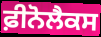
ਫ਼ੀਨੋਲੈਕਸ